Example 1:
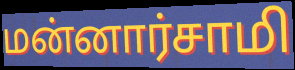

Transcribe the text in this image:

மன்னார்சாமி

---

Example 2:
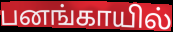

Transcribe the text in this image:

பனங்காயில்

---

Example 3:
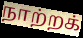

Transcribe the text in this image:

நாற்றக்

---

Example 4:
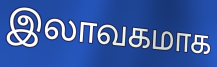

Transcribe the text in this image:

இலாவகமாக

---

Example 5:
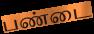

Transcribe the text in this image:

பண்டை